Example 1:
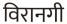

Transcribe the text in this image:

विरानगी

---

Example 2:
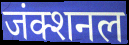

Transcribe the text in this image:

जंक्शनल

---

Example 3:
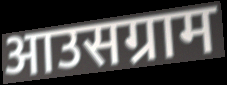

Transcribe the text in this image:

आउसग्राम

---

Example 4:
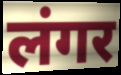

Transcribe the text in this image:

लंगर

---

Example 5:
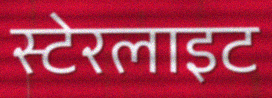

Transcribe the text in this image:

स्टेरलाइट